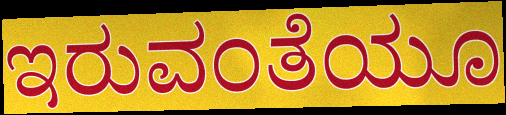
ಇರುವಂತೆಯೂ